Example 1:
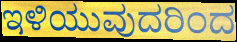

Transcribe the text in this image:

ಇಳಿಯುವುದರಿಂದ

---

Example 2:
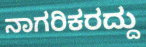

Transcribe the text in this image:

ನಾಗರಿಕರದ್ದು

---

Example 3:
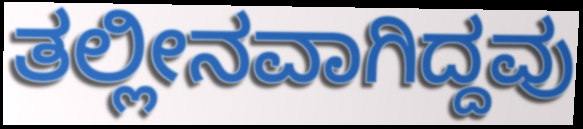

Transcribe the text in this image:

ತಲ್ಲೀನವಾಗಿದ್ದವು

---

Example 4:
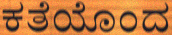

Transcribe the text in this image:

ಕತೆಯೊಂದ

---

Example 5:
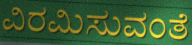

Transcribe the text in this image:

ವಿರಮಿಸುವಂತೆ